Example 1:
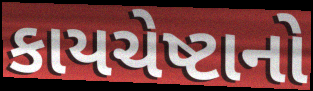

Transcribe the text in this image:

કાયચેષ્ટાનો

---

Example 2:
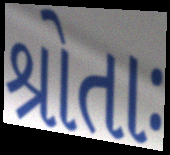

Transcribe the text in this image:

શ્રોતાઃ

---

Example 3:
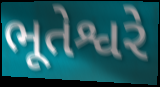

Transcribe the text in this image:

ભૂતેશ્વરે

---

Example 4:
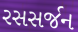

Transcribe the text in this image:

રસસર્જન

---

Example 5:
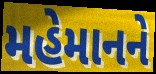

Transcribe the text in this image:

મહેમાનને